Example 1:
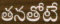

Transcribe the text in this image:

తనతోటే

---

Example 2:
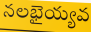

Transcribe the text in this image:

నలభైయ్యవ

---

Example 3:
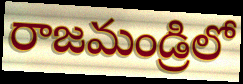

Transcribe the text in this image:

రాజమండ్రిలో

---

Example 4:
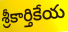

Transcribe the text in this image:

శ్రీకార్తికేయ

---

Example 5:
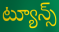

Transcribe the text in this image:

ట్యూన్స్